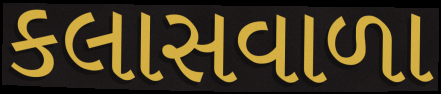
કલાસવાળા